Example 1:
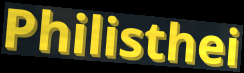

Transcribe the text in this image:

Philisthei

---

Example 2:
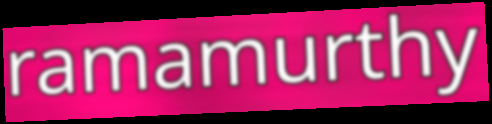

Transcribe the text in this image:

ramamurthy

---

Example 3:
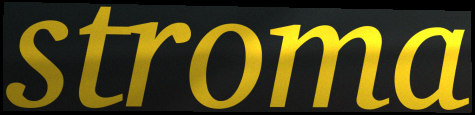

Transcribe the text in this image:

stroma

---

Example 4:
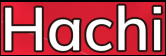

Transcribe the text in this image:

Hachi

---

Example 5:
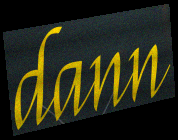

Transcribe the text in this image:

dann